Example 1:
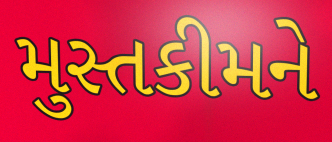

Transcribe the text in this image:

મુસ્તકીમને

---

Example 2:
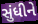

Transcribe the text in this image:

સુંધીને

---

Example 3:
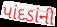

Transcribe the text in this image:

પાંદડાંની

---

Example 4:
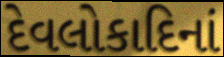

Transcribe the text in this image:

દેવલોકાદિનાં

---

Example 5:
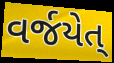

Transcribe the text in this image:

વર્જયેત્